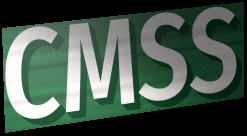
CMSS